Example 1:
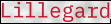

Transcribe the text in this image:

Lillegard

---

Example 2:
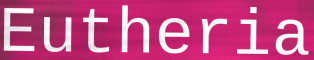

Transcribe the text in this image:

Eutheria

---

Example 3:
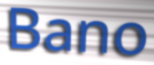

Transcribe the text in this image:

Bano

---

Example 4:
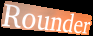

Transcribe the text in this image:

Rounder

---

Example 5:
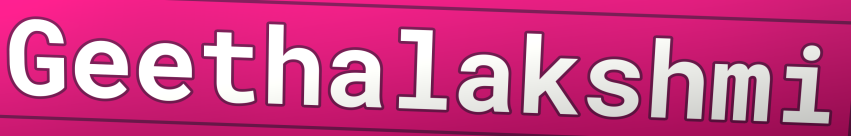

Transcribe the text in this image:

Geethalakshmi